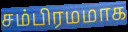
சம்பிரமமாக